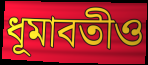
ধূমাবতীও